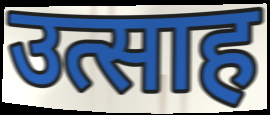
उत्साह